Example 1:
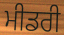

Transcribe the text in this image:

ਮੀਡਰੀ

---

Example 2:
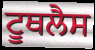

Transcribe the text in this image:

ਟੂਥਲੈਸ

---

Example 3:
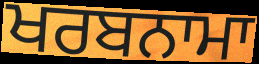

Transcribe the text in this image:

ਖਰਬਨਾਮਾ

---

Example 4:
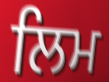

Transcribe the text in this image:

ਲਿਮ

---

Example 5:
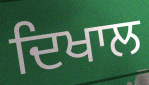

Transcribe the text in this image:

ਦਿਖਾਲ